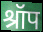
श्रॉप